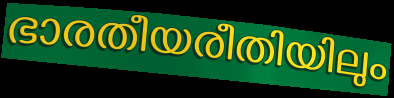
ഭാരതീയരീതിയിലും